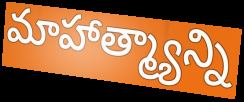
మాహాత్మ్యాన్ని